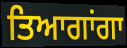
ਤਿਆਗਾਂਗਾ